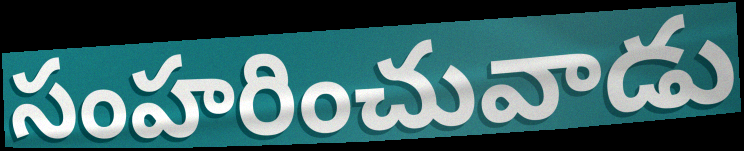
సంహరించువాడు